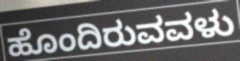
ಹೊಂದಿರುವವಳು